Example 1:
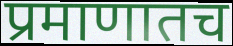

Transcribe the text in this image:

प्रमाणातच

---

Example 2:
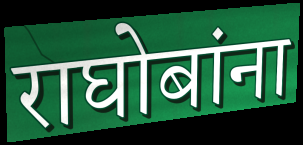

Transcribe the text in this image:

राघोबांना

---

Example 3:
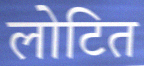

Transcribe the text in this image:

लोटित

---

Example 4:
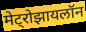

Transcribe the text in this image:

मेट्रोझायलॉन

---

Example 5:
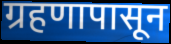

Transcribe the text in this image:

ग्रहणापासून